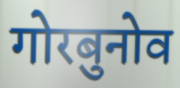
गोरबुनोव